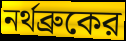
নর্থব্রুকের